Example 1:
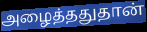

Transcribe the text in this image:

அழைத்ததுதான்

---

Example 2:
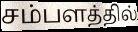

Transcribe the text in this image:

சம்பளத்தில்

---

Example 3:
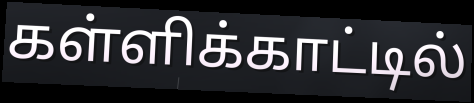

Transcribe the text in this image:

கள்ளிக்காட்டில்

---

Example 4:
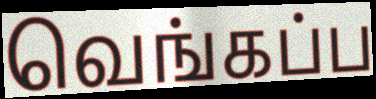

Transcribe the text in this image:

வெங்கப்ப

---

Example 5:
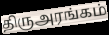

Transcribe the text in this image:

திருஅரங்கம்